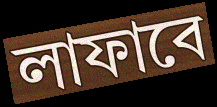
লাফাবে